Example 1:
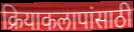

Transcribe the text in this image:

क्रियाकलापांसाठी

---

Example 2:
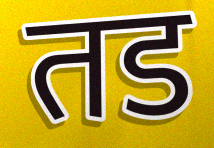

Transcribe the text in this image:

तड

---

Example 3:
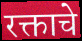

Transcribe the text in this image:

रक्ताचे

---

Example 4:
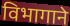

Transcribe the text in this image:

विभागाने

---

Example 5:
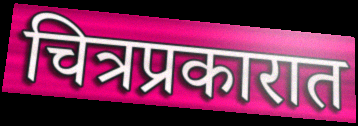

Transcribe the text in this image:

चित्रप्रकारात